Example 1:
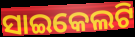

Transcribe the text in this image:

ସାଇକେଲଟି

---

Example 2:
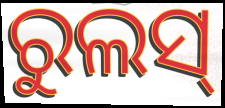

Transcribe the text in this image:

ରୁଲସ୍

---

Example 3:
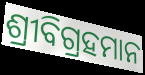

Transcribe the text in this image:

ଶ୍ରୀବିଗ୍ରହମାନ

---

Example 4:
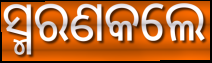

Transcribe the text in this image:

ସ୍ମରଣକଲେ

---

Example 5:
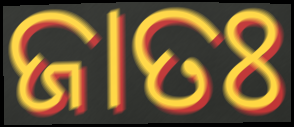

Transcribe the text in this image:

ଜାତଃ